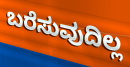
ಬರೆಸುವುದಿಲ್ಲ